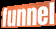
funnel